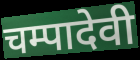
चम्पादेवी